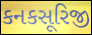
કનકસૂરિજી